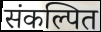
संकल्पित